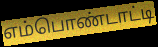
எம்பொண்டாட்டி